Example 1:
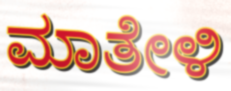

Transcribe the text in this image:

ಮಾತೇಳಿ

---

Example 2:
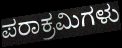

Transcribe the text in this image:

ಪರಾಕ್ರಮಿಗಳು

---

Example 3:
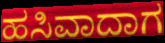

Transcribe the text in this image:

ಹಸಿವಾದಾಗ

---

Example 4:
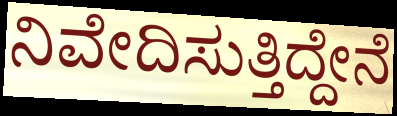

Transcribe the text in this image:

ನಿವೇದಿಸುತ್ತಿದ್ದೇನೆ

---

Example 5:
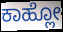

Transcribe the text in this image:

ಕಾಹ್ಲೋ